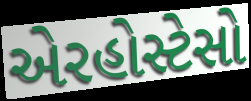
એરહોસ્ટેસો